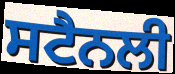
ਸਟੈਨਲੀ